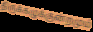
திருக்கழுக்குன்றமும்